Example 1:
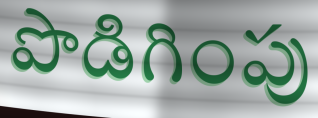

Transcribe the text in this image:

పొడిగింపు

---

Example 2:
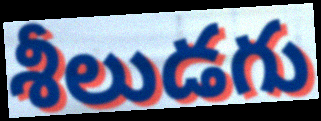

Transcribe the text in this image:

శీలుడగు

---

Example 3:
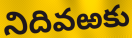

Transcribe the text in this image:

నిదివఱకు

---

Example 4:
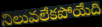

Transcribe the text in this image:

నిలువలేకపోయేది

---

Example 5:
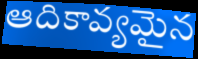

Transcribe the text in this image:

ఆదికావ్యమైన